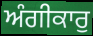
ਅੰਗੀਕਾਰੁ